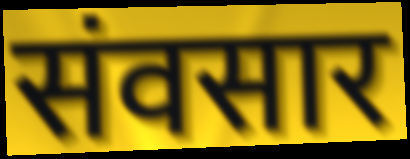
संवसार